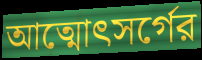
আত্মোৎসর্গের